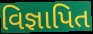
વિજ્ઞાપિત